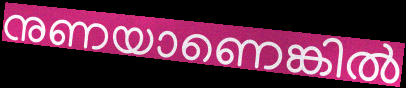
നുണയാണെങ്കിൽ